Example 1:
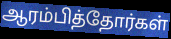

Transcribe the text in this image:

ஆரம்பித்தோர்கள்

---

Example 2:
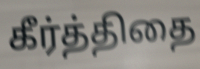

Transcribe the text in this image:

கீர்த்திதை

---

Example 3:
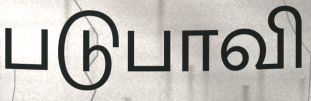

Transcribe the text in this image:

படுபாவி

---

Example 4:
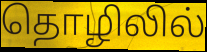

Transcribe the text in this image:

தொழிலில்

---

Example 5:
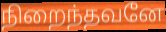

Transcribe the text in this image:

நிறைந்தவனே